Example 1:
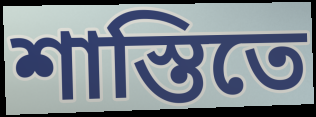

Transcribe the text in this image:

শাস্তিতে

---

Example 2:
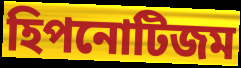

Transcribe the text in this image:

হিপনোটিজম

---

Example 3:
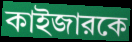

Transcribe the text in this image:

কাইজারকে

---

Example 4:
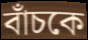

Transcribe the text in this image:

বাঁচকে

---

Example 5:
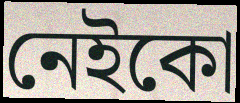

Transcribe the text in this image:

নেইকো